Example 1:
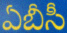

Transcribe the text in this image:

ఏబీసీ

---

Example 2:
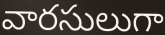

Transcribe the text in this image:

వారసులుగా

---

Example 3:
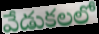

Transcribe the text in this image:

వేడుకలలో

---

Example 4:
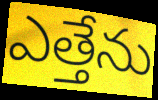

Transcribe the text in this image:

ఎత్తేను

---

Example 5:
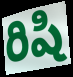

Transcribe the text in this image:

రిషి